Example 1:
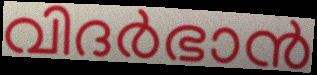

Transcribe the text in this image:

വിദർഭാൻ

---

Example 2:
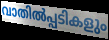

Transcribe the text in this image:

വാതിൽപ്പടികളും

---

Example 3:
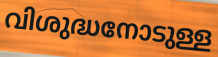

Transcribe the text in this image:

വിശുദ്ധനോടുള്ള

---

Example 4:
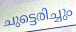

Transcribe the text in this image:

ചുട്ടെരിച്ചും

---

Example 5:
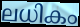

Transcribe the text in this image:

ലധികം